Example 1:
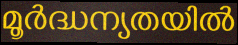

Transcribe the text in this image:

മൂർദ്ധന്യതയിൽ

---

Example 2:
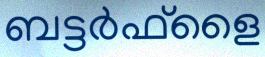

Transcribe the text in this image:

ബട്ടർഫ്ളൈ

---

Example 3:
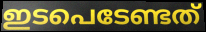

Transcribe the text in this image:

ഇടപെടേണ്ടത്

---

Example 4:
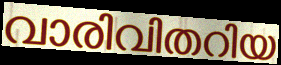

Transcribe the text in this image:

വാരിവിതറിയ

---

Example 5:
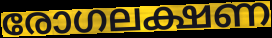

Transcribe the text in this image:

രോഗലക്ഷണ